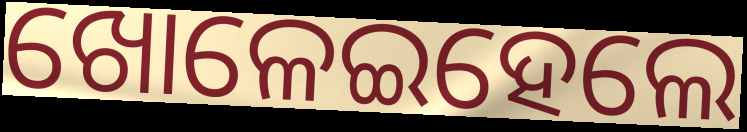
ଖୋଳେଇହେଲେ